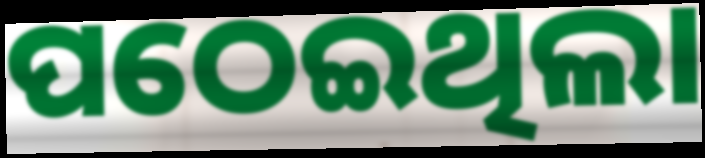
ପଠେଇଥିଲା